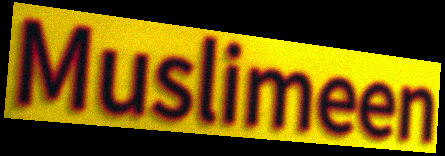
Muslimeen